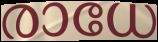
രാധേ